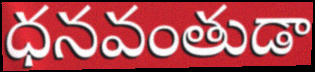
ధనవంతుడా